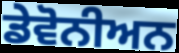
ਡੇਵੋਨੀਅਨ